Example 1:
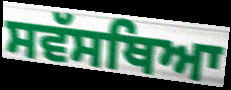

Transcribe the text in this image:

ਸਵੱਸਥਿਆ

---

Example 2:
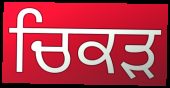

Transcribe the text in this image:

ਚਿਕੜ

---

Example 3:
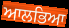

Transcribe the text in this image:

ਆਲਭਿਆ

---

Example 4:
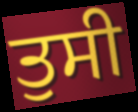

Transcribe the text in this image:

ਤੁਸੀ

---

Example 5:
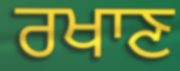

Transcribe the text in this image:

ਰਖਾਣ